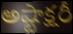
అష్టాక్షరీ